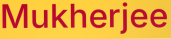
Mukherjee